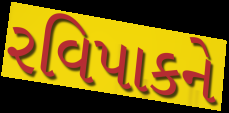
રવિપાકને